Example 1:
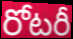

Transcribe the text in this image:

రోటరీ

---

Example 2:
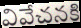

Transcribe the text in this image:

వివేచనకి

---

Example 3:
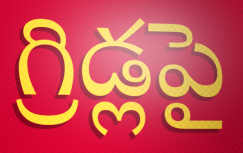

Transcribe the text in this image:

గ్రిడ్లపై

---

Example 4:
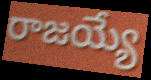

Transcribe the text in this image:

రాజయ్యే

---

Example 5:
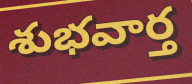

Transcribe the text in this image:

శుభవార్త